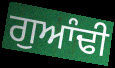
ਗੁਆੰਢੀ